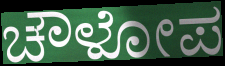
ಚೌಳೋಪ